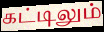
கட்டிலும்